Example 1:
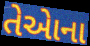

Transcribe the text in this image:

તેએાના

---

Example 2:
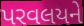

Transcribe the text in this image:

પરવલયને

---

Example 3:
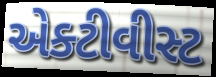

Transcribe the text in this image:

એક્ટીવીસ્ટ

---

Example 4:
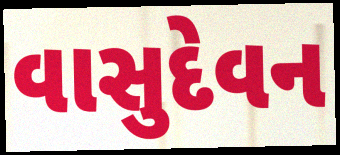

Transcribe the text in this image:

વાસુદેવન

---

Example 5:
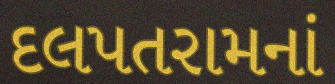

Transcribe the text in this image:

દલપતરામનાં